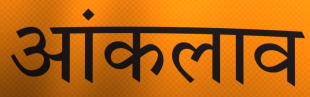
आंकलाव